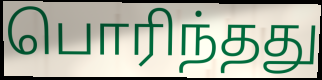
பொரிந்தது